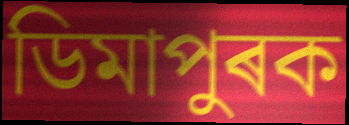
ডিমাপুৰক